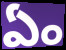
ఏం